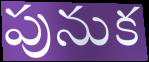
పునుక